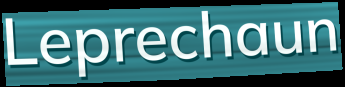
Leprechaun